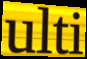
ulti